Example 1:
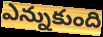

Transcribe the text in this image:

ఎన్నుకుంది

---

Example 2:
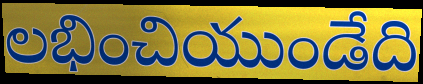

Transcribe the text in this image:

లభించియుండేది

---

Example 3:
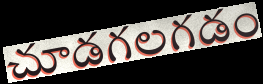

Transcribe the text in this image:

చూడగలగడం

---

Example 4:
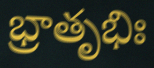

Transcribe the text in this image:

భ్రాతృభిః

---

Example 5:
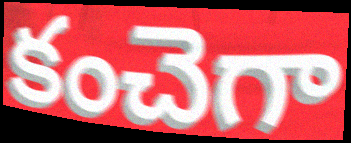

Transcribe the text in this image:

కంచెగా